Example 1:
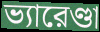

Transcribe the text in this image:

ভ্যারেণ্ডা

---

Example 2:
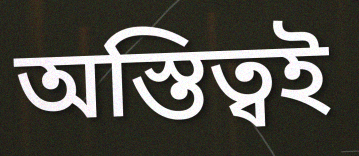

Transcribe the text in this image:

অস্তিত্বই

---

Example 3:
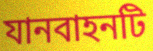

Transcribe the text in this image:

যানবাহনটি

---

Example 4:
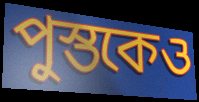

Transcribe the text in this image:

পুস্তকেও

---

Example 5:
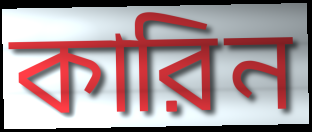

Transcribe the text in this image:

কারিন